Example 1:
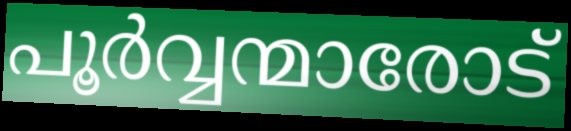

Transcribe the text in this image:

പൂർവ്വന്മാരോട്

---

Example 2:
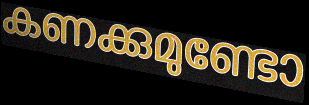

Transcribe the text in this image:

കണക്കുമുണ്ടോ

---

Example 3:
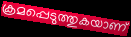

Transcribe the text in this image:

ക്രമപ്പെടുത്തുകയാണ്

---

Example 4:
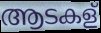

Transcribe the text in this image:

ആടകള്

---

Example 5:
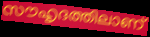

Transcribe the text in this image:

സൗഹൃദത്തിലാണ്